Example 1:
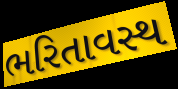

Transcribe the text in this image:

ભરિતાવસ્થ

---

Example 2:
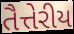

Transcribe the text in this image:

તૈત્તેરીય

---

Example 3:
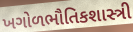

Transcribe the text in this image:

ખગોળભૌતિકશાસ્ત્રી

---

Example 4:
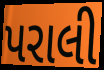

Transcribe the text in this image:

પરાલી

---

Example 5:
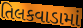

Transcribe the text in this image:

તિલકવાડામાં